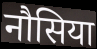
नौसिया